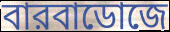
বারবাডোজে